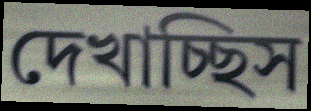
দেখাচ্ছিস